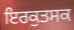
ਇਰਕੁਤਸਕ